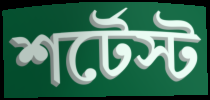
শর্টেস্ট